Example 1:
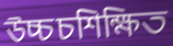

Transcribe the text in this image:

উচ্চচশিক্ষিত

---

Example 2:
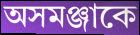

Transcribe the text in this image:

অসমঞ্জাকে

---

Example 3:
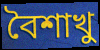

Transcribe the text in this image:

বৈশাখু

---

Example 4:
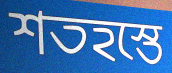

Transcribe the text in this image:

শতহস্তে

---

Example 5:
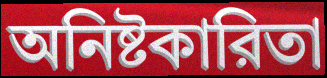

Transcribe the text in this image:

অনিষ্টকারিতা